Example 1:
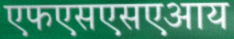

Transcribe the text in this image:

एफएसएसएआय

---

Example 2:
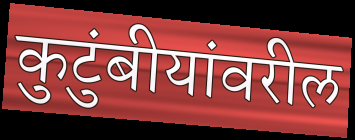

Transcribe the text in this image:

कुटुंबीयांवरील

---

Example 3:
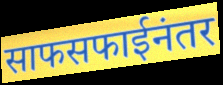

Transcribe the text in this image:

साफसफाईनंतर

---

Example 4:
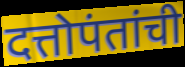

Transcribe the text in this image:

दत्तोपंतांची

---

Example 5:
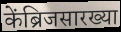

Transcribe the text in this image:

केंब्रिजसारख्या